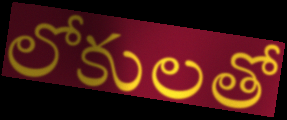
లోకులతో